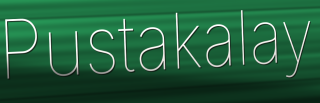
Pustakalay